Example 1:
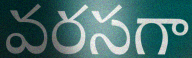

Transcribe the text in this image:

వరసగా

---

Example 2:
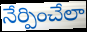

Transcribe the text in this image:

నేర్పించేలా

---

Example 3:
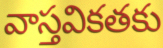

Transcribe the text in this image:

వాస్తవికతకు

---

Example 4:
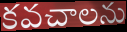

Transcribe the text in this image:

కవచాలను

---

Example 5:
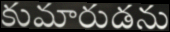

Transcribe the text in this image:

కుమారుడను